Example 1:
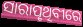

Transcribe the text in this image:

ସାରାପୃଥିବୀରେ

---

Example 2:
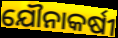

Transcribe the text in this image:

ଯୌନାକର୍ଷୀ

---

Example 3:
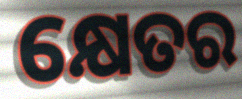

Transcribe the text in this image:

କ୍ଷେତର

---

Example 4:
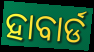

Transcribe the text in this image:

ହାବାର୍ଡ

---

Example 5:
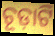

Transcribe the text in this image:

ଚୂଡ଼ାଟି